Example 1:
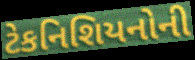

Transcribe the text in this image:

ટેકનિશિયનોની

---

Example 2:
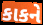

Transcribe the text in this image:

કાકને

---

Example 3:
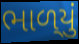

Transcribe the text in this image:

ભાળ્‌યું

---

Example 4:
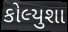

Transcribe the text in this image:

કોલ્યુશા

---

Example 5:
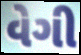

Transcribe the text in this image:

વેગી